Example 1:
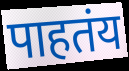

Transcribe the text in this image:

पाहतंय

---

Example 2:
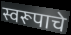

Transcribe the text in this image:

स्वरूपाचे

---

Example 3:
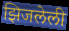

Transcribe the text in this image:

झिजलेली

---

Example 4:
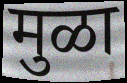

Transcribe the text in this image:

मुळा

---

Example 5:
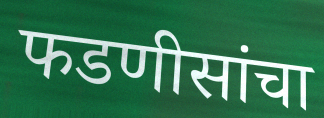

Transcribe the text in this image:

फडणीसांचा